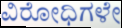
ವಿರೋಧಿಗಳೇ